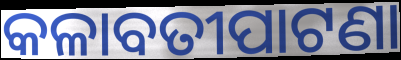
କଳାବତୀପାଟଣା